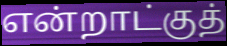
என்றாட்குத்